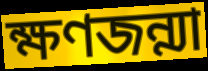
ক্ষণজন্মা